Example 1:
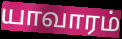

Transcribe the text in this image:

யாவாரம்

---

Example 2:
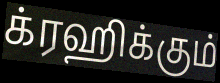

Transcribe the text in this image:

க்ரஹிக்கும்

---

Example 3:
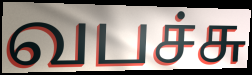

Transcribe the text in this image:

வபச்சு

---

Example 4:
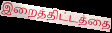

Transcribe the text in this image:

இறைத்திட்டத்தை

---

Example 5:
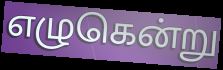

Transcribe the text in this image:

எழுகென்று